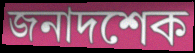
জনাদশেক